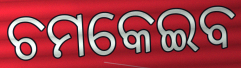
ଚମକେଇବ